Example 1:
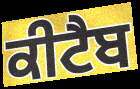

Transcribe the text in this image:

ਕੀਟੈਬ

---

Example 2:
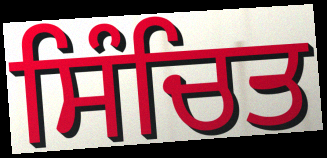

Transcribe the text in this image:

ਸਿੰਚਿਤ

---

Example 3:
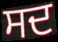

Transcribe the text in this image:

ਸਦ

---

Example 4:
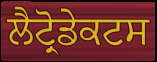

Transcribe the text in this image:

ਲੈਟ੍ਰੋਡੇਕਟਸ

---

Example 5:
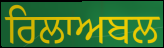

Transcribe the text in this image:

ਰਿਲਾਅਬਲ